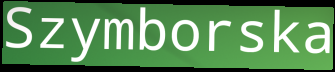
Szymborska